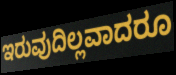
ಇರುವುದಿಲ್ಲವಾದರೂ